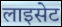
लाइसेट